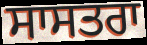
ਸਾਸਤਰਾ